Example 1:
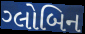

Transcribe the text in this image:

ગ્લોબિન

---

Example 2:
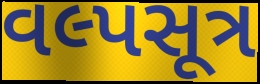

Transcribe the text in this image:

વલ્પસૂત્ર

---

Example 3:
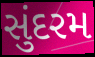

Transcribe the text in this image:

સુંદરમ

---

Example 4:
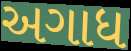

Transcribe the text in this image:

અગાધ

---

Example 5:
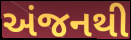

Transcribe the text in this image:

અંજનથી